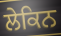
ਲੇਕਿਨ